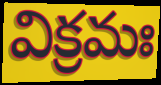
విక్రమః